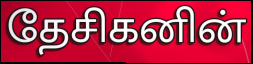
தேசிகனின்